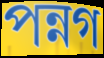
পন্নগ